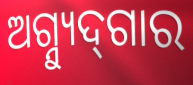
ଅଗ୍ନ୍ୟୁଦ୍‌ଗାର